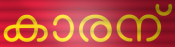
കാരന്